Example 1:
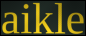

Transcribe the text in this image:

aikle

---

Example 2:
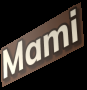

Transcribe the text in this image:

Mami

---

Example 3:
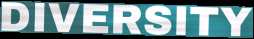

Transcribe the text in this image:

DIVERSITY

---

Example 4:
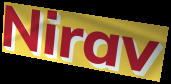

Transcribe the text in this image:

Nirav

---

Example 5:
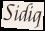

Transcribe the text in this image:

Sidiq